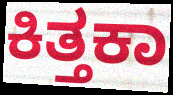
ಕಿತ್ತಕಾ